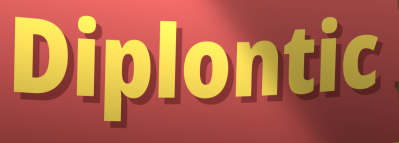
Diplontic